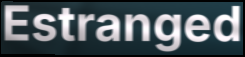
Estranged